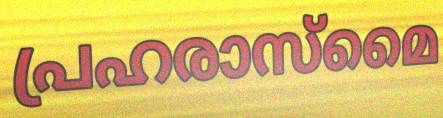
പ്രഹരാസ്മൈ